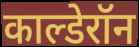
काल्डेरॉन